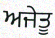
ਅਜੇਤੂ